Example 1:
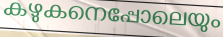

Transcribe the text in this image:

കഴുകനെപ്പോലെയും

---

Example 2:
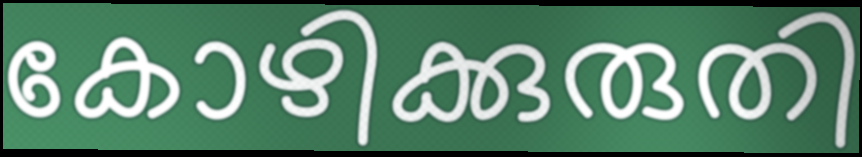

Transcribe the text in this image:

കോഴിക്കുരുതി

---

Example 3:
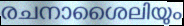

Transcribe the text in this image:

രചനാശൈലിയും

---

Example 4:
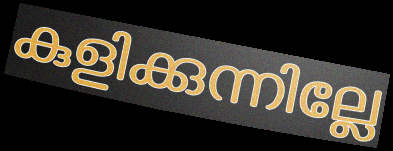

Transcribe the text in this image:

കുളിക്കുന്നില്ലേ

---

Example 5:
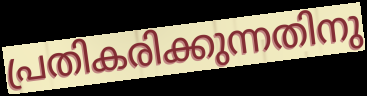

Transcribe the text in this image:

പ്രതികരിക്കുന്നതിനു